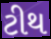
ટીથ